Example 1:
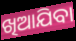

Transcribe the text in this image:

ଖିଆଯିବା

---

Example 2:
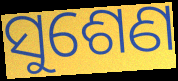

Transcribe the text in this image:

ସୁଶେଣ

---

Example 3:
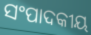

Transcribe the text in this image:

ସଂପାଦକୀୟ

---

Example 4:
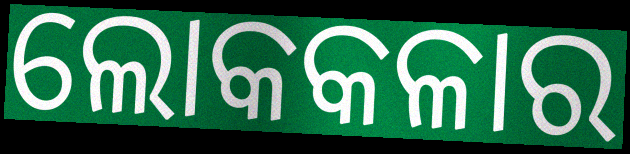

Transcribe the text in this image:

ଲୋକକଳାର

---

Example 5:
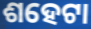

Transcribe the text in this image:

ଶହେଟା